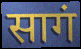
सागं